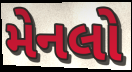
મેનલો